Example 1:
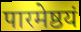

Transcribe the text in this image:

पारमेष्ठयं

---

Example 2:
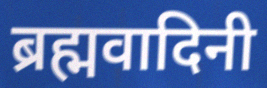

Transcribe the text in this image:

ब्रह्मवादिनी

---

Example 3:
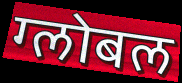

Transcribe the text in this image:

ग्लोबल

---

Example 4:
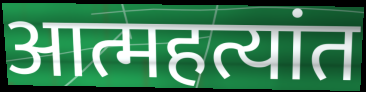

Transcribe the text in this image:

आत्महत्यांत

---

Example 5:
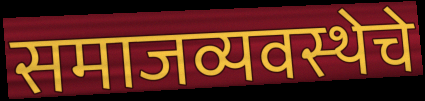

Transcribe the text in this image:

समाजव्यवस्थेचे